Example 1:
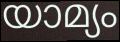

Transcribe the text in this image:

യാമ്യം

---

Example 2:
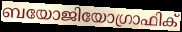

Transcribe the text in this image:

ബയോജിയോഗ്രാഫിക്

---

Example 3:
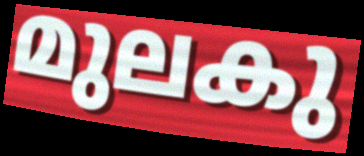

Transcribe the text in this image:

മുലകു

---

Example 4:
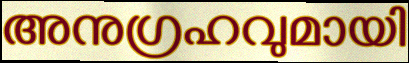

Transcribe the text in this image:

അനുഗ്രഹവുമായി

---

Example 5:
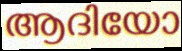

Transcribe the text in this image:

ആദിയോ